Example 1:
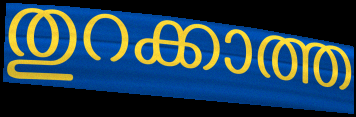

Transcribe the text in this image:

തുറക്കാത്ത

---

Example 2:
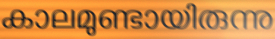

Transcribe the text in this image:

കാലമുണ്ടായിരുന്നു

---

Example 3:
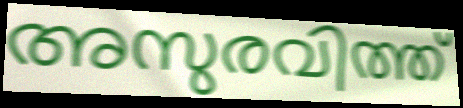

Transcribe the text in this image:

അസുരവിത്ത്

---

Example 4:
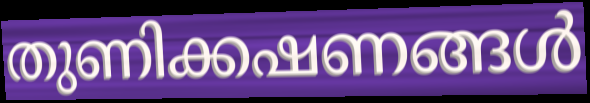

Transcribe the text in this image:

തുണിക്കഷണങ്ങൾ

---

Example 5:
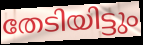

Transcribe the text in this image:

തേടിയിട്ടും